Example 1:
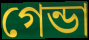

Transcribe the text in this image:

গেন্ডা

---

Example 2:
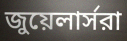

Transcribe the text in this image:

জুয়েলার্সরা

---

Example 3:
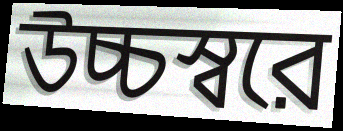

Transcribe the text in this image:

উচ্চস্বরে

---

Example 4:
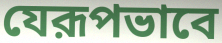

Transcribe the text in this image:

যেরূপভাবে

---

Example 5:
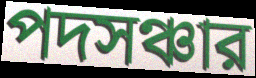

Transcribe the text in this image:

পদসঞ্চার